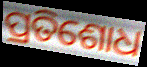
ପ୍ରତିଶୋଧ